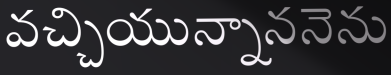
వచ్చియున్నాననెను